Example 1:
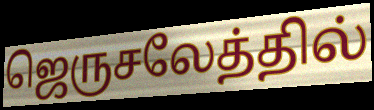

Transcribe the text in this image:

ஜெருசலேத்தில்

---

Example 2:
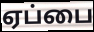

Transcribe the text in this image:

ஏப்பை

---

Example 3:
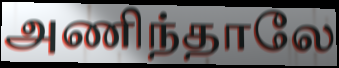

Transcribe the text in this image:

அணிந்தாலே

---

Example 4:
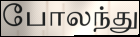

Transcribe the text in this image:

போலந்து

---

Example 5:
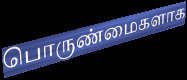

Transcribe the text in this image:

பொருண்மைகளாக